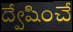
ద్వేషించే